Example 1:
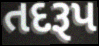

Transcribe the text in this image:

તદરૂપ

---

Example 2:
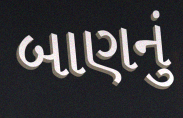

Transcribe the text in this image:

બાણનું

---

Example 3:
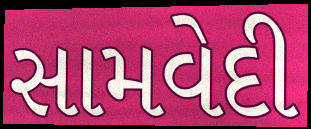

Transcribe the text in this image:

સામવેદી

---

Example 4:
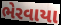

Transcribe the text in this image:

ભેરવાયા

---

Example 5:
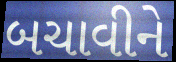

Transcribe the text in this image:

બચાવીને